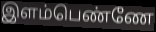
இளம்பெண்ணே